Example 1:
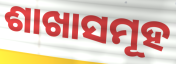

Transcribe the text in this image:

ଶାଖାସମୂହ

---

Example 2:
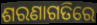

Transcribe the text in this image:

ଶରଣାଗତିରେ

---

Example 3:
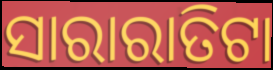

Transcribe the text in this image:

ସାରାରାତିଟା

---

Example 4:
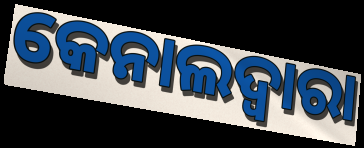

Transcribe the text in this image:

କେନାଲଦ୍ଵାରା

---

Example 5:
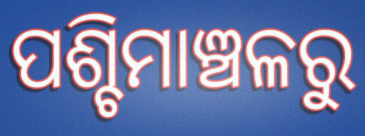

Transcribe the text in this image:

ପଶ୍ଚିମାଞ୍ଚଳରୁ